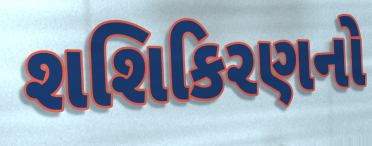
શશિકિરણનો